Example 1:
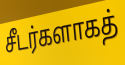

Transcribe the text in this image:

சீடர்களாகத்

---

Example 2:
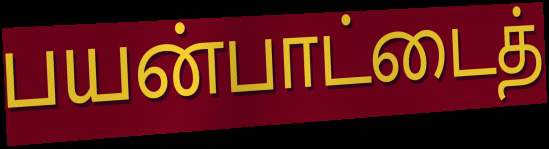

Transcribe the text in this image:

பயன்பாட்டைத்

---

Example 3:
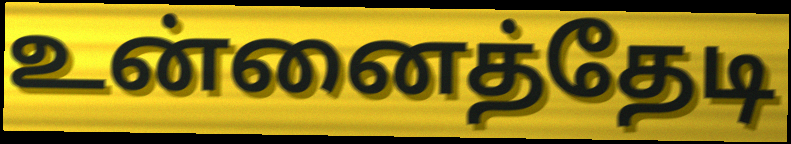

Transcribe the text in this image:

உன்னைத்தேடி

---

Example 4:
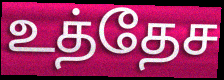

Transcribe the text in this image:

உத்தேச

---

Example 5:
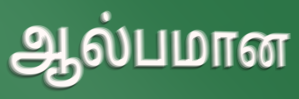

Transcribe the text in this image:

ஆல்பமான